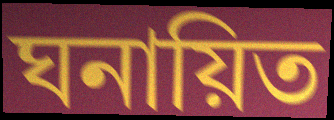
ঘনায়িত